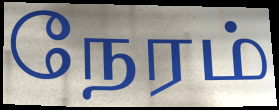
நேரம்